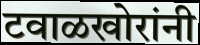
टवाळखोरांनी